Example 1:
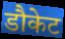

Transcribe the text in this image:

डौकेट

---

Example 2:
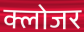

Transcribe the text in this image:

क्लोजर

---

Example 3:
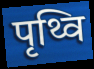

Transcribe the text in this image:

पृथ्वि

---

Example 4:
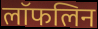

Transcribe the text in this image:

लॉफलिन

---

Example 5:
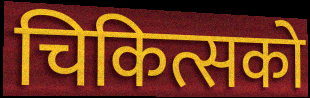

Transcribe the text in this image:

चिकित्सको